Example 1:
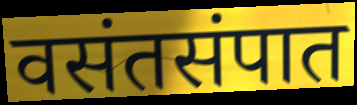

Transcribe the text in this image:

वसंतसंपात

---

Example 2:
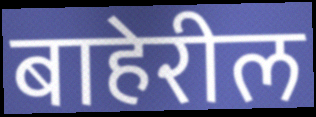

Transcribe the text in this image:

बाहेरील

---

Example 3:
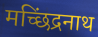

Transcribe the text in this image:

मच्छिंद्रनाथ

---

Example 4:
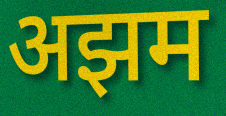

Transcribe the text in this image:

अझम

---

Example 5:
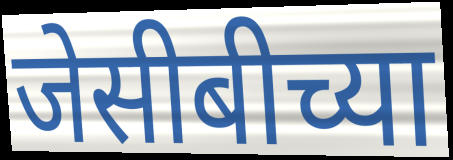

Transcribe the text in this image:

जेसीबीच्या